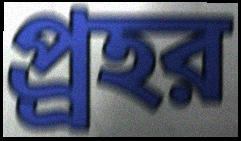
প্র্রহর